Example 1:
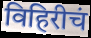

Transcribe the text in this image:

विहिरीचं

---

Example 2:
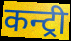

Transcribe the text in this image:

कन्ट्री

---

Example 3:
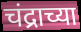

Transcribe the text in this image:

चंद्राच्या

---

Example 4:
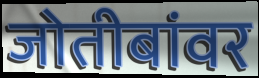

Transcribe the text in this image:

जोतीबांवर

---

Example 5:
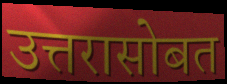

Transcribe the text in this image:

उत्तरासोबत